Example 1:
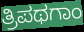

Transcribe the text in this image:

ತ್ರಿಪಥಗಾಂ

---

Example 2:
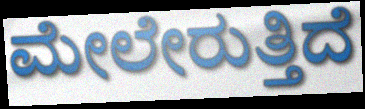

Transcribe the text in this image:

ಮೇಲೇರುತ್ತಿದೆ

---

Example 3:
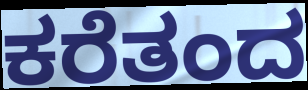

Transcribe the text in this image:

ಕರೆತಂದ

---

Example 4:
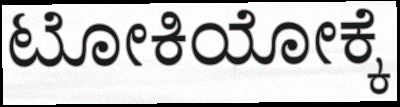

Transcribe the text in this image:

ಟೋಕಿಯೋಕ್ಕೆ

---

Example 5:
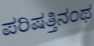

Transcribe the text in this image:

ಪರಿಷತ್ತಿನಂಥ